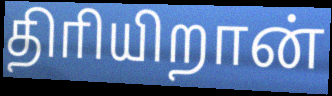
திரியிறான்